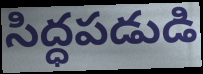
సిద్ధపడుడి